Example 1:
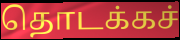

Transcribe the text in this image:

தொடக்கச்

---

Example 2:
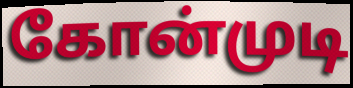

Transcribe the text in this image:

கோன்முடி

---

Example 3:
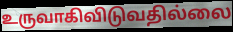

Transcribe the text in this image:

உருவாகிவிடுவதில்லை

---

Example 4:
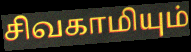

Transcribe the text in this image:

சிவகாமியும்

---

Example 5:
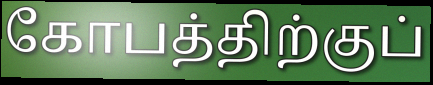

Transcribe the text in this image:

கோபத்திற்குப்